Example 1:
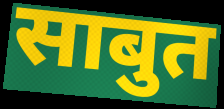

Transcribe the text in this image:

साबुत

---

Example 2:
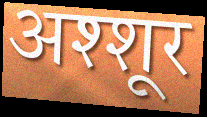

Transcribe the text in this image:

अश्शूर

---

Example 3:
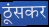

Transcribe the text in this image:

ठूंसकर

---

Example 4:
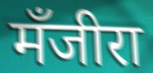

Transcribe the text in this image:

मँजीरा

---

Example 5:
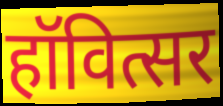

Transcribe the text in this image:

हॉवित्सर